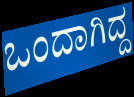
ಒಂದಾಗಿದ್ದ